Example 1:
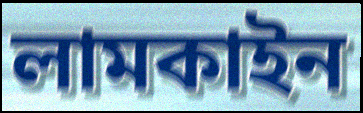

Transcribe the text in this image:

লামকাইন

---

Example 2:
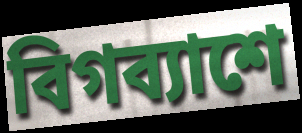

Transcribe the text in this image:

বিগব্যাশে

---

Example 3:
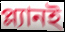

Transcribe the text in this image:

প্ল্যানই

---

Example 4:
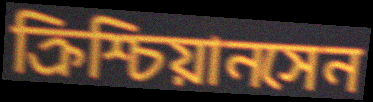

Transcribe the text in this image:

ক্রিশ্চিয়ানসেন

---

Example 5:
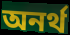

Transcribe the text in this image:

অনর্থ